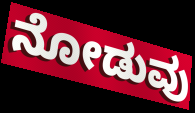
ನೋಡುವು